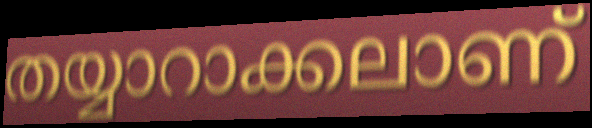
തയ്യാറാക്കലാണ്